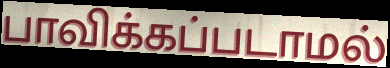
பாவிக்கப்படாமல்